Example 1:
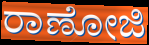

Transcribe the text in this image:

ರಾಣೋಜಿ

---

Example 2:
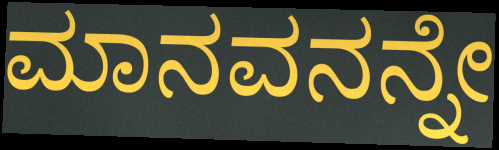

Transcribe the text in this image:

ಮಾನವನನ್ನೇ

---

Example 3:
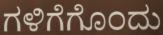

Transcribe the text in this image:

ಗಳಿಗೆಗೊಂದು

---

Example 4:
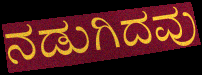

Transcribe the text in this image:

ನಡುಗಿದವು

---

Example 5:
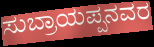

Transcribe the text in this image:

ಸುಬ್ರಾಯಪ್ಪನವರ